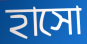
হাসো